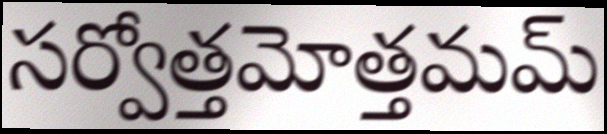
సర్వోత్తమోత్తమమ్